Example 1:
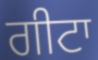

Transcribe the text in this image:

ਗੀਟਾ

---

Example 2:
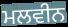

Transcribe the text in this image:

ਮਲਵੀਨ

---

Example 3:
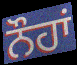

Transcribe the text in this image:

ਨੌਹਾਂ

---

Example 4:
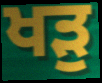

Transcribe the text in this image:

ਖੜੁ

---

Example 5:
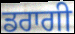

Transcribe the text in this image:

ਡਰਾਗੀ